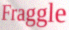
Fraggle